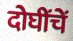
दोघींचें